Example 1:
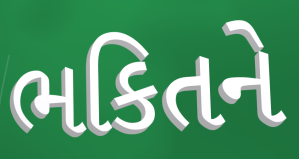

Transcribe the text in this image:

ભકિતને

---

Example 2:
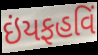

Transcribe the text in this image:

ઇંયફહવિં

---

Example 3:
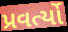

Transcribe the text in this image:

પ્રવર્ત્યો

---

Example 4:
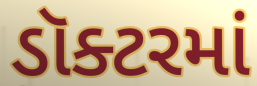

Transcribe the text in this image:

ડૉક્ટરમાં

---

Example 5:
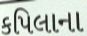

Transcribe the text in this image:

કપિલાના